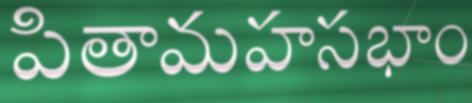
పితామహసభాం